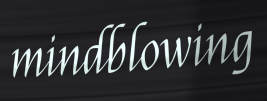
mindblowing